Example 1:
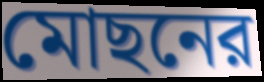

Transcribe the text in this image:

মোছনের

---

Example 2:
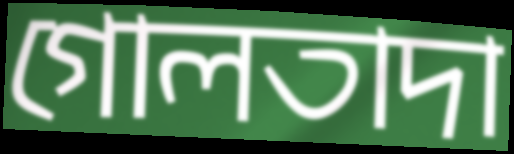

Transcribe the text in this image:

গোলতাদা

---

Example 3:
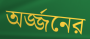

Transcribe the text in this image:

অর্জ্জনের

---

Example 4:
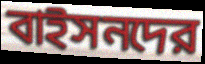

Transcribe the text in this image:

বাইসনদের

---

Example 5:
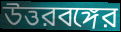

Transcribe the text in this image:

উত্তরবঙ্গের